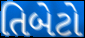
તિબેટો